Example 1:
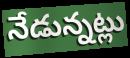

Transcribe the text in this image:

నేడున్నట్లు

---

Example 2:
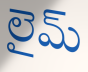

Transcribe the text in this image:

లైమ్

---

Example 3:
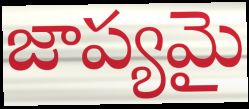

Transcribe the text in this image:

జాప్యమై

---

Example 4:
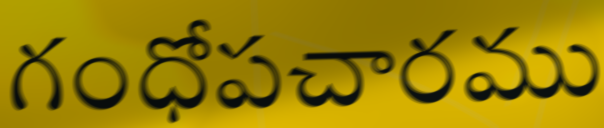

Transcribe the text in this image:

గంధోపచారము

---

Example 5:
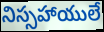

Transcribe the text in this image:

నిస్సహాయులే